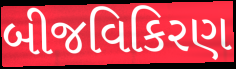
બીજવિકિરણ